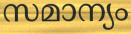
സമാന്യം